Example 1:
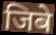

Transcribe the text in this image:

जिबे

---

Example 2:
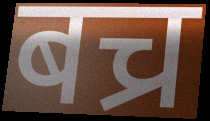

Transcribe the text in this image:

बच्र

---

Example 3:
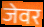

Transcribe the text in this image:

जेवर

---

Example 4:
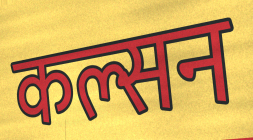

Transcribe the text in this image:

कल्सन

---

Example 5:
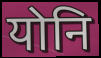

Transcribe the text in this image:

योनि